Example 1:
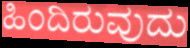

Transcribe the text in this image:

ಹಿಂದಿರುವುದು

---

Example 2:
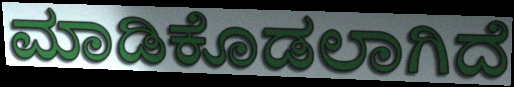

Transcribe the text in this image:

ಮಾಡಿಕೊಡಲಾಗಿದೆ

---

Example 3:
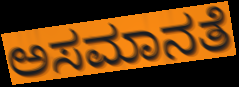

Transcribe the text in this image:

ಅಸಮಾನತೆ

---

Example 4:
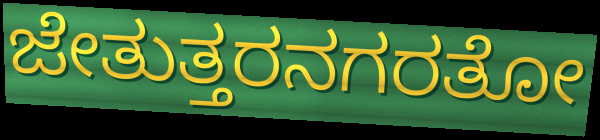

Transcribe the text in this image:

ಜೇತುತ್ತರನಗರತೋ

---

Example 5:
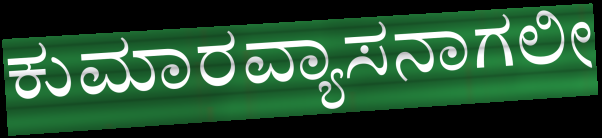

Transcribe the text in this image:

ಕುಮಾರವ್ಯಾಸನಾಗಲೀ